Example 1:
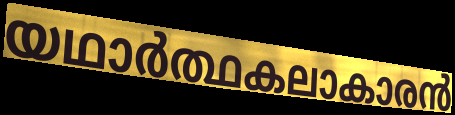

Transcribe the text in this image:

യഥാർത്ഥകലാകാരൻ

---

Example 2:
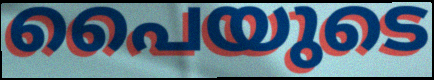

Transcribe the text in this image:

പൈയുടെ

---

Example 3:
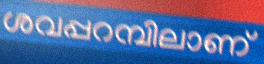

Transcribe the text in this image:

ശവപ്പറമ്പിലാണ്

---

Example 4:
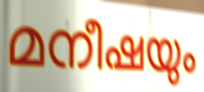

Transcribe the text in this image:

മനീഷയും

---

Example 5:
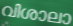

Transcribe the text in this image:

വിശാലാ